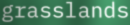
grasslands